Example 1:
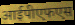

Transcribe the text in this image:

आईपीएफएस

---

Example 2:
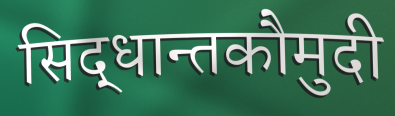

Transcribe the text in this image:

सिद्धान्तकौमुदी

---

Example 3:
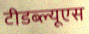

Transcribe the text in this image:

टीडब्ल्यूएस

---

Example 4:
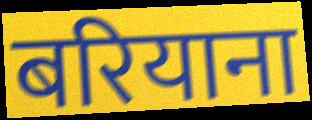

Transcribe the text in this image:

बरियाना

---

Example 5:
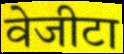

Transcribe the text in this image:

वेजीटा